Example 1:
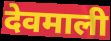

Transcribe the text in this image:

देवमाली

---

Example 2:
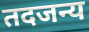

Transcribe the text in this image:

तदजन्य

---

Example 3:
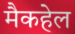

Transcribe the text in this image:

मैकहेल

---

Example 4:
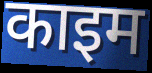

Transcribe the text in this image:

काइम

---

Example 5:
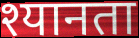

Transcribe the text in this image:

श्यानता